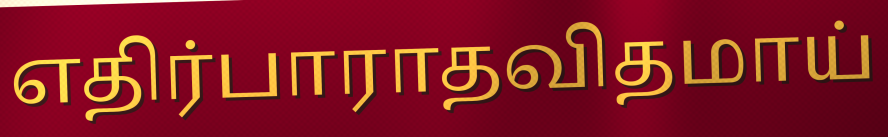
எதிர்பாராதவிதமாய்